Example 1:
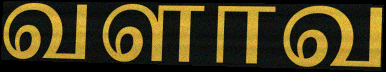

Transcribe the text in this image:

வளாவ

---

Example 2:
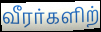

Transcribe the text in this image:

வீரர்களிற்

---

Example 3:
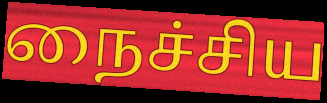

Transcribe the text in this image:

நைச்சிய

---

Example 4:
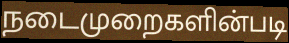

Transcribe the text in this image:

நடைமுறைகளின்படி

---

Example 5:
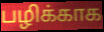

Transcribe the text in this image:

பழிக்காக